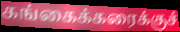
கங்கைக்கரைக்குச்